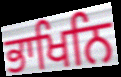
ਭਾਖਿਨਿ